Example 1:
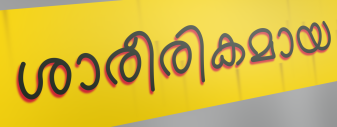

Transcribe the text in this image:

ശാരീരികമായ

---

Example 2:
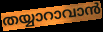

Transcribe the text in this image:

തയ്യാറാവാൻ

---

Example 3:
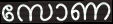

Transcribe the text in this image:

സോണ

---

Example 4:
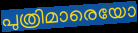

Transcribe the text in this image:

പുത്രിമാരെയോ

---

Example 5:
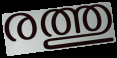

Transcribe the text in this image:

രത്തു